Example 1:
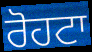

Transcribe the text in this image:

ਰੋਹਟਾ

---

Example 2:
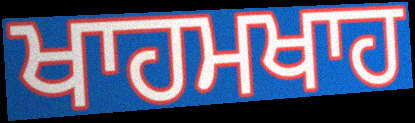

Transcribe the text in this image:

ਖਾਹਮਖਾਹ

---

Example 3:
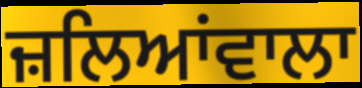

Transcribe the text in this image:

ਜ਼ਲਿਆਂਵਾਲਾ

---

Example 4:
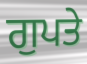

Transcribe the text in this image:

ਗੁਪਤੇ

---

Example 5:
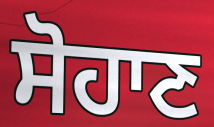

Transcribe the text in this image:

ਸੋਹਾਣ